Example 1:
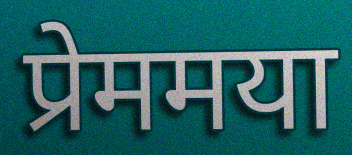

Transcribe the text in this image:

प्रेममया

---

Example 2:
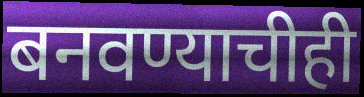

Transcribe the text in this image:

बनवण्याचीही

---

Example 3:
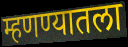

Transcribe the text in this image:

म्हणण्यातला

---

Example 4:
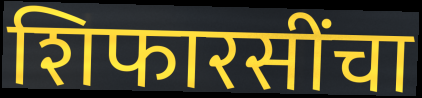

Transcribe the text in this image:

शिफारसींचा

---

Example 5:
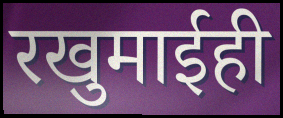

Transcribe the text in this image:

रखुमाईही